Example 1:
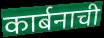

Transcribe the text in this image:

कार्बनाची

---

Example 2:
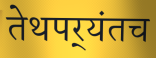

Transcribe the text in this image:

तेथपर्यंतच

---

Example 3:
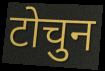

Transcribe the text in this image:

टोचुन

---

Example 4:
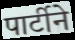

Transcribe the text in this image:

पार्टीने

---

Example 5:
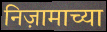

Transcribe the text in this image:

निज़ामाच्या